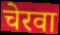
चेरवा